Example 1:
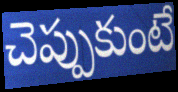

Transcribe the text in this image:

చెప్పుకుంటే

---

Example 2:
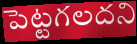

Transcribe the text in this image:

పెట్టగలదని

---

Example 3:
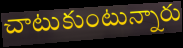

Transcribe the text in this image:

చాటుకుంటున్నారు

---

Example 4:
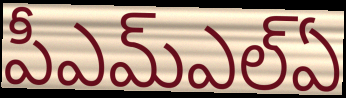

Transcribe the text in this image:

పీఎమ్ఎల్ఏ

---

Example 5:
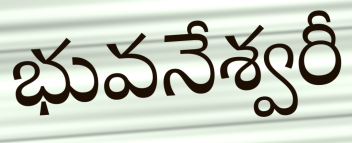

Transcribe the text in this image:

భువనేశ్వరీ